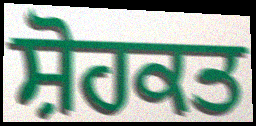
ਸ਼ੋਹਕਤ